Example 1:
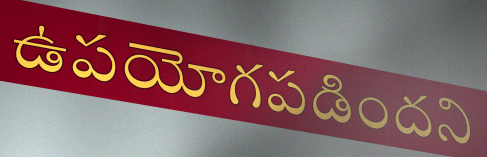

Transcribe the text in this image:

ఉపయోగపడిందని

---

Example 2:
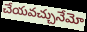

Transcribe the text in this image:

చేయవచ్చునేమో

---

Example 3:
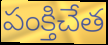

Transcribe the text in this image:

పంక్తిచేత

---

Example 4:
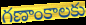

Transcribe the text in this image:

గణాంకాలకు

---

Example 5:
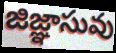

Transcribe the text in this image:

జిజ్ఞాసువు